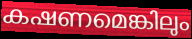
കഷണമെങ്കിലും